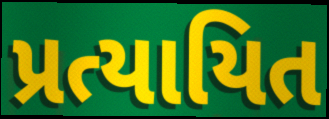
પ્રત્યાયિત